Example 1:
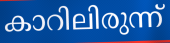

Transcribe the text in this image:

കാറിലിരുന്ന്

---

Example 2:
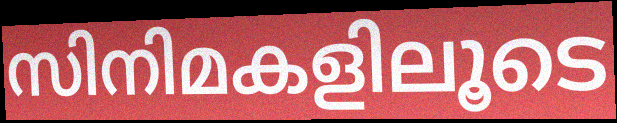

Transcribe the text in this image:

സിനിമകളിലൂടെ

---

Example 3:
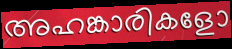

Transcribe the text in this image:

അഹങ്കാരികളോ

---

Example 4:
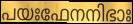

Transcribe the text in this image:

പയഃഫേനനിഭാഃ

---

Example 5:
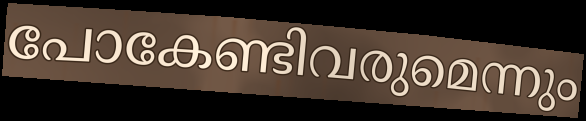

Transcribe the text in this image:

പോകേണ്ടിവരുമെന്നും